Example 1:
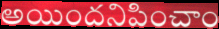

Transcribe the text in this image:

అయిందనిపించాం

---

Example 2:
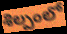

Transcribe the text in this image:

శిల్పంలో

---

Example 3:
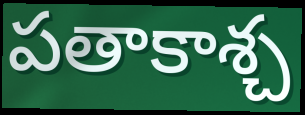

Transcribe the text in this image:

పతాకాశ్చ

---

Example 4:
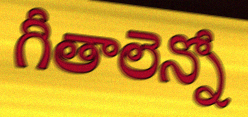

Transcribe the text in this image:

గీతాలెన్నో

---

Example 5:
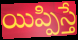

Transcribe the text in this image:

యిప్పిస్తే